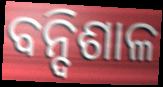
ବନ୍ଦିଶାଳ